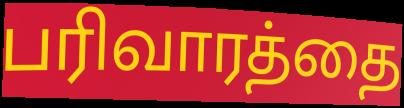
பரிவாரத்தை